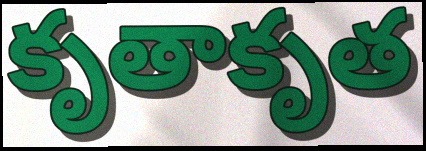
కృతాకృత